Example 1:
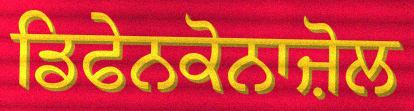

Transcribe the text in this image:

ਡਿਫੇਨਕੋਨਾਜ਼ੋਲ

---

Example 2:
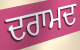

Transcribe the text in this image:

ਦਰਾਮਦ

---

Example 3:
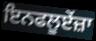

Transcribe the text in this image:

ਇਨਫਲੂਏਂਜ਼ਾ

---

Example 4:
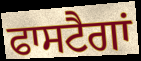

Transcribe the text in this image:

ਫਾਸਟੈਗਾਂ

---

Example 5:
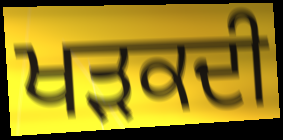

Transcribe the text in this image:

ਖੜਕਦੀ